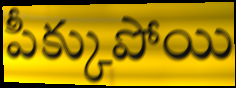
పీక్కుపోయి